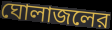
ঘোলাজলের